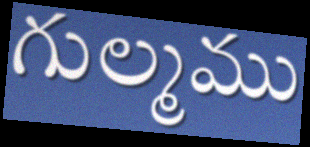
గుల్మము